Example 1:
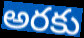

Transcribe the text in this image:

అరకు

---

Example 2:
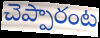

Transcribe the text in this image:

చెప్పారంట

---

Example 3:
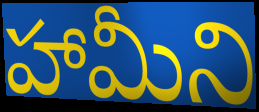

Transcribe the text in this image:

హామీని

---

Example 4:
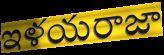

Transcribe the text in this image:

ఇళయరాజా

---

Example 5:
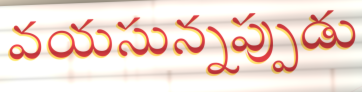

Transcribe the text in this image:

వయసున్నప్పుడు